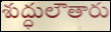
శుద్ధులౌతారు